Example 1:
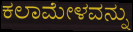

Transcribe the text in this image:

ಕಲಾಮೇಳವನ್ನು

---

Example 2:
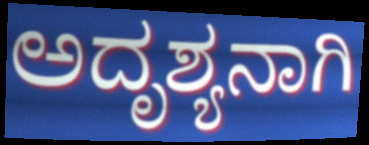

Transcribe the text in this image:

ಅದೃಶ್ಯನಾಗಿ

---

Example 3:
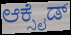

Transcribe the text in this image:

ಆಕ್ಸೈಡ್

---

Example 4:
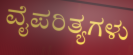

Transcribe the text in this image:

ವೈಪರಿತ್ಯಗಳು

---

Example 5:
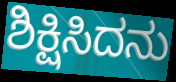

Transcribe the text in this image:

ಶಿಕ್ಷಿಸಿದನು